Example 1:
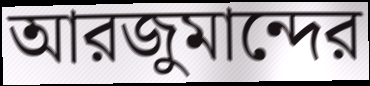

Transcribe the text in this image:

আরজুমান্দের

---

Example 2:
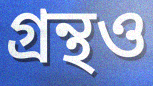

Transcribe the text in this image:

গ্রন্থও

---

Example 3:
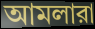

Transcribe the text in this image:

আমলারা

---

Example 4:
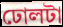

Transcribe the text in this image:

ঢোলটা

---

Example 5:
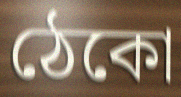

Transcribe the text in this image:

ঠেকো